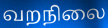
வறநிலை